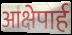
आक्षेपार्ह